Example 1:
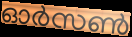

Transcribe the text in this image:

ഓർസൺ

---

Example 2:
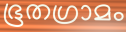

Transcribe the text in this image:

ഭൂതഗ്രാമം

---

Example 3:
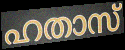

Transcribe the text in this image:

ഹതാസ്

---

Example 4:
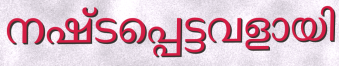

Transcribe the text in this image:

നഷ്ടപ്പെട്ടവളായി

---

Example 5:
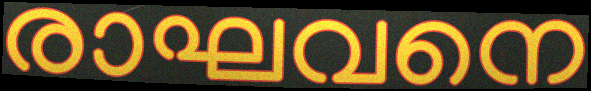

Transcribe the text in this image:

രാഘവനെ